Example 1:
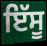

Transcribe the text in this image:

ਇੱਸੂ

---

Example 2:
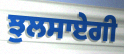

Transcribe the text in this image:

ਝੁਲਸਾਏਗੀ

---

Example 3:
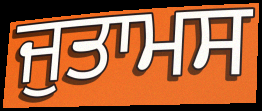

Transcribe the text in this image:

ਜੁਤਾਮਸ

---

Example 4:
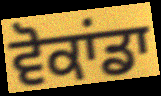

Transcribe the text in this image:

ਵੋਕਾਂਡਾ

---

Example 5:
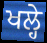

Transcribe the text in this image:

ਖਲ੍ਹੇ